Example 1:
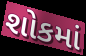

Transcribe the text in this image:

શોકમાં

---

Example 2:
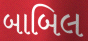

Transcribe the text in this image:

બાબિલ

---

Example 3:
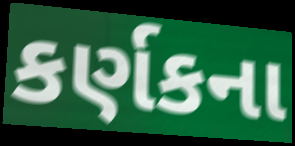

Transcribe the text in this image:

કર્ણકના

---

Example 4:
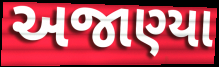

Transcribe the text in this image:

અજાણ્યા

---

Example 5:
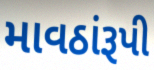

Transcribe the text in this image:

માવઠાંરૂપી